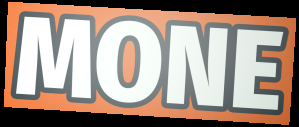
MONE